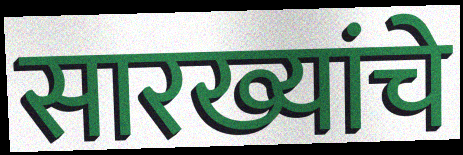
सारख्यांचे